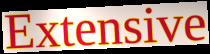
Extensive